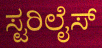
ಸ್ಟರಿಲೈಸ್